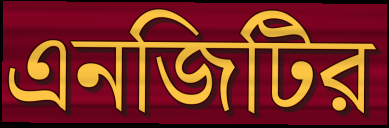
এনজিটির